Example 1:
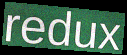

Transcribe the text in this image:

redux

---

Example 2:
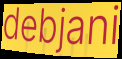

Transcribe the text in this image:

debjani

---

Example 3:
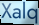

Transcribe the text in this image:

Xalq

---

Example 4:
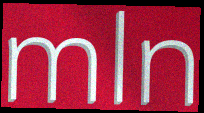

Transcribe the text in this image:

mln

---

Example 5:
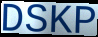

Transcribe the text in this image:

DSKP